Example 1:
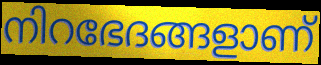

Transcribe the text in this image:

നിറഭേദങ്ങളാണ്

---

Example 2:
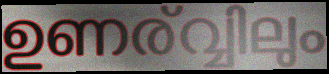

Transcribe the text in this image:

ഉണര്വ്വിലും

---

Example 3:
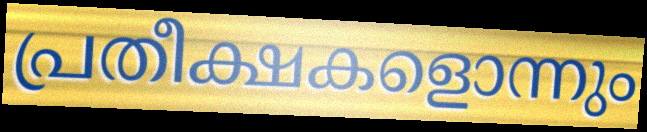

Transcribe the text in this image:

പ്രതീക്ഷകളൊന്നും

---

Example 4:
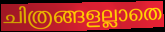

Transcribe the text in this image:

ചിത്രങ്ങളല്ലാതെ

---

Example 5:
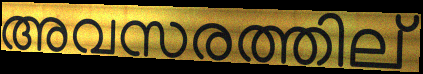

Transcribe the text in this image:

അവസരത്തില്